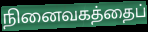
நினைவகத்தைப்